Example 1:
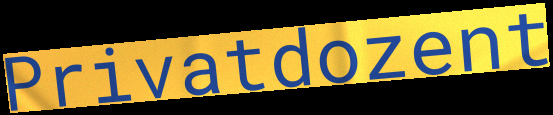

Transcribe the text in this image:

Privatdozent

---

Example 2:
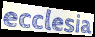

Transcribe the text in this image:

ecclesia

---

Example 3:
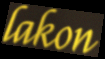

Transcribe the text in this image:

lakon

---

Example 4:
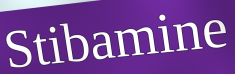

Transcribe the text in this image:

Stibamine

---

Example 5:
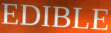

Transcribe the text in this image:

EDIBLE